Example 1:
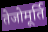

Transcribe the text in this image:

तेजोमूर्ति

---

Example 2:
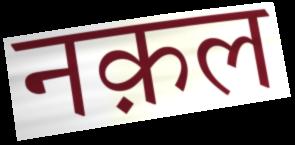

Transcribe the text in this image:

नक़ल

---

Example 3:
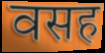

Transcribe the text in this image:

वसह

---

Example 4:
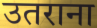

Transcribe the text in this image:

उतराना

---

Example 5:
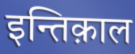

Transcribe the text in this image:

इन्तिक़ाल